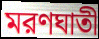
মরণঘাতী